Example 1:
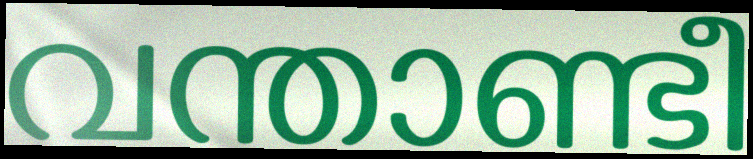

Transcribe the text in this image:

വന്താണ്ടീ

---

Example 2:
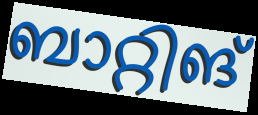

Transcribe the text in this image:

ബാറ്റിങ്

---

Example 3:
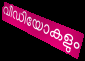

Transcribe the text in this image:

വീഡിയോകളും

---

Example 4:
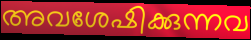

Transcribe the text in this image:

അവശേഷിക്കുന്നവ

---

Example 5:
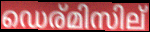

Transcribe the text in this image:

ഡെര്മിസില്